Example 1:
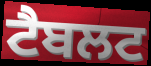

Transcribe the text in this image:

ਟੈਬਲਟ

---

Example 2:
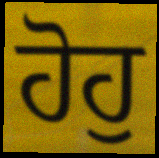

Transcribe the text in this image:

ਹੋਹੁ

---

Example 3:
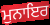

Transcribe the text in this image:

ਮੁਨਾਇਰ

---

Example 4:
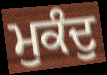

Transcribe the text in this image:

ਮੁਕੰਦੁ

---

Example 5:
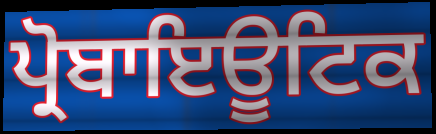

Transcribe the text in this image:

ਪ੍ਰੋਬਾਇਊਟਿਕ